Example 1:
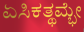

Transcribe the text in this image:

ಏಸಿಕತ್ಥಮ್ಭೇ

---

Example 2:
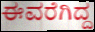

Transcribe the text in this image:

ಈವರೆಗಿದ್ದ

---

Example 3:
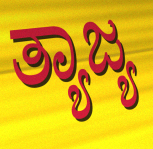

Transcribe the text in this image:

ತ್ಯಾಜ್ಯ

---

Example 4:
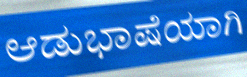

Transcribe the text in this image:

ಆಡುಭಾಷೆಯಾಗಿ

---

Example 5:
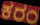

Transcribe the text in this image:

ಕರಂ